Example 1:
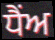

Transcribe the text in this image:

ਧੈਂਅ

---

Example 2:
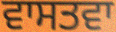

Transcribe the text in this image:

ਵਾਸਤਵਾ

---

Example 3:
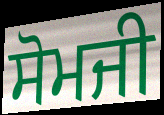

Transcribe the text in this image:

ਸੋਮਜੀ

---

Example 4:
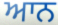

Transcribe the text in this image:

ਆਨ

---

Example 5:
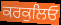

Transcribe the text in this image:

ਕਰਕੁਲਿਓ